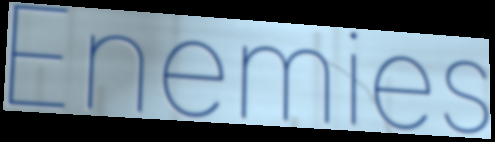
Enemies